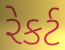
રેકર્ટ